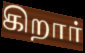
கிறார்